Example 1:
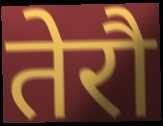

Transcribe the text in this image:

तेरौ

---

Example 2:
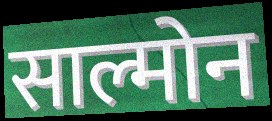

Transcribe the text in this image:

साल्मोन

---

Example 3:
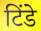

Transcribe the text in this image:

टिंडे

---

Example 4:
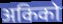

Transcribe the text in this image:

अकिको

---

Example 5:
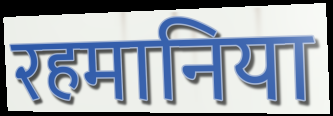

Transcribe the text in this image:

रहमानिया